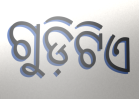
ଗୁଡ଼ିଟିଏ